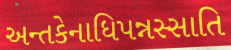
અન્તકેનાધિપન્નસ્સાતિ